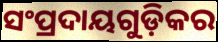
ସଂପ୍ରଦାୟଗୁଡ଼ିକର